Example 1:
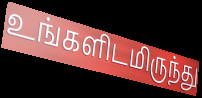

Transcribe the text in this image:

உங்களிடமிருந்து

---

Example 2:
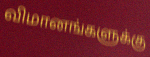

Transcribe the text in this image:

விமானங்களுக்கு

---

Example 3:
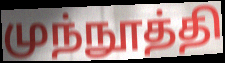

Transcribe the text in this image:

முந்நூத்தி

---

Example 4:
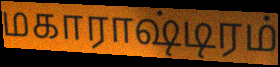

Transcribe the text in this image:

மகாராஷ்டிரம்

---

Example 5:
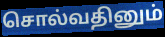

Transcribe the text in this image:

சொல்வதினும்